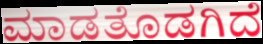
ಮಾಡತೊಡಗಿದೆ